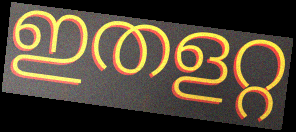
ഇതളറ്റ